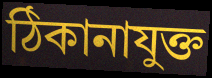
ঠিকানাযুক্ত